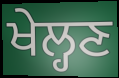
ਖੇਲ੍ਹਣ